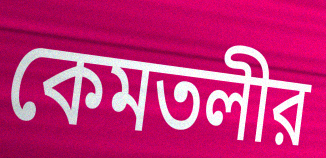
কেমতলীর